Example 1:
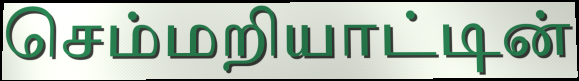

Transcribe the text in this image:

செம்மறியாட்டின்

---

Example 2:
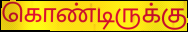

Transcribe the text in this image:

கொண்டிருக்கு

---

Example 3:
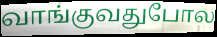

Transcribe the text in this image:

வாங்குவதுபோல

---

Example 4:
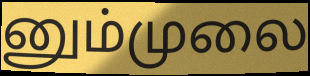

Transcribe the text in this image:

னும்முலை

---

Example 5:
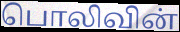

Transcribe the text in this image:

பொலிவின்